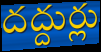
దద్దుర్లు